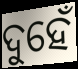
ଦୁହେଁ